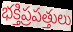
భక్తిప్రపత్తులు